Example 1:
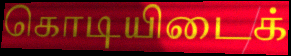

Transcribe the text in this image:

கொடியிடைக்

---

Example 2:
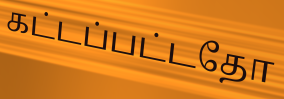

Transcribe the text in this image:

கட்டப்பட்டதோ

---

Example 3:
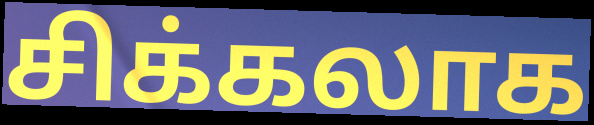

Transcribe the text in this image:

சிக்கலாக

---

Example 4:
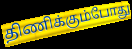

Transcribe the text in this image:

திணிக்கும்போது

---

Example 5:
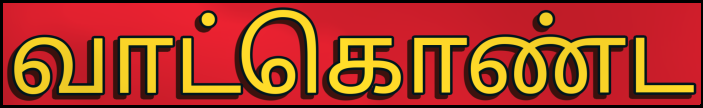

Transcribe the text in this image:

வாட்கொண்ட